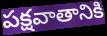
పక్షవాతానికి